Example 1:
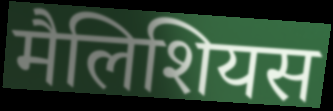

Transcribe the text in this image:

मैलिशियस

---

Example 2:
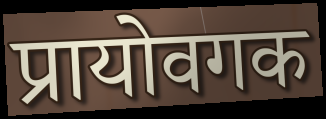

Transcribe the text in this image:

प्रायोवगक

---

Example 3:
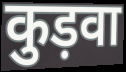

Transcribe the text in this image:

कुड़वा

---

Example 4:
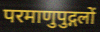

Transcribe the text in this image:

परमाणुपुद्गलों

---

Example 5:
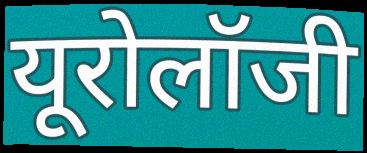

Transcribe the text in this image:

यूरोलॉजी